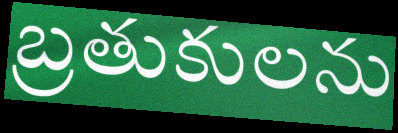
బ్రతుకులను